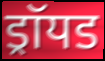
ड्रॉयड